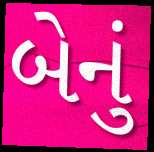
બેનું